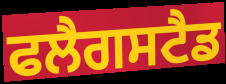
ਫਲੈਗਸਟੈਡ